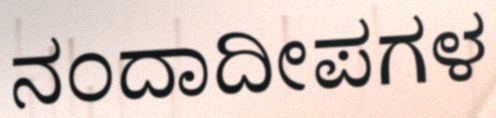
ನಂದಾದೀಪಗಳ